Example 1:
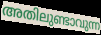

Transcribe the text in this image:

അതിലുണ്ടാവുന്ന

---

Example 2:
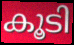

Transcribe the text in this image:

കൂടി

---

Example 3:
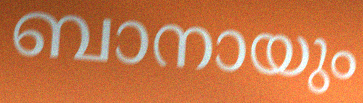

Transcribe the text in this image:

ബാനായും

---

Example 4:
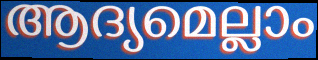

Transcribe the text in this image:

ആദ്യമെല്ലാം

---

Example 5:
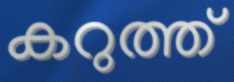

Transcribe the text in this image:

കറുത്ത്